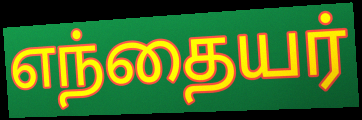
எந்தையர்